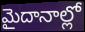
మైదానాల్లో